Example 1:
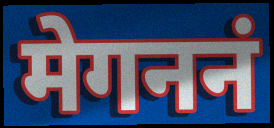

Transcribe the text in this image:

मेगननं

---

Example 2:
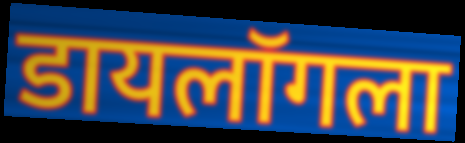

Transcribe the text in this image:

डायलॉगला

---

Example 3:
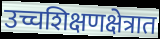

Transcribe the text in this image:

उच्चशिक्षणक्षेत्रात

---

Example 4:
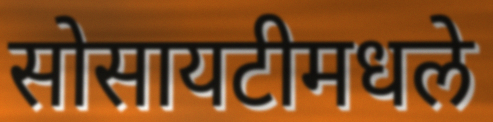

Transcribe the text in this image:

सोसायटीमधले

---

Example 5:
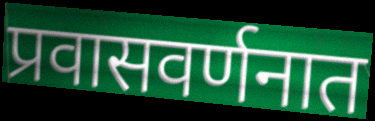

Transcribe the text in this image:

प्रवासवर्णनात